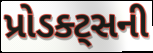
પ્રોડક્ટ્સની